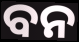
ବନ